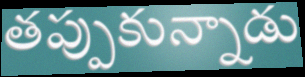
తప్పుకున్నాడు